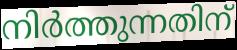
നിർത്തുന്നതിന്